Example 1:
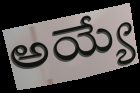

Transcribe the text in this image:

అయ్యే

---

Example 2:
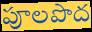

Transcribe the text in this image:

పూలపొద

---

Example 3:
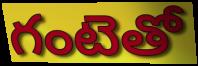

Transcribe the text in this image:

గంటెతో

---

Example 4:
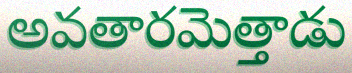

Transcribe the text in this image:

అవతారమెత్తాడు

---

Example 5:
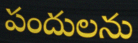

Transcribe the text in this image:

పందులను